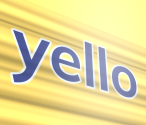
yello